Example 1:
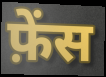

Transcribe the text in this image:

फ़ेंस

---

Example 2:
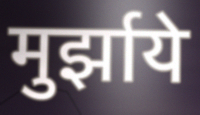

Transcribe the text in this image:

मुर्झाये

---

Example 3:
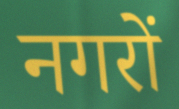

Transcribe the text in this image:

नगरों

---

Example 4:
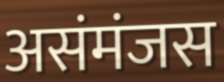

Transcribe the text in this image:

असंमंजस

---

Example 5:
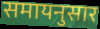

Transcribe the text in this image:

समायनुसार